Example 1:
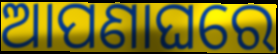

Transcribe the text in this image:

ଆପଣାଘରେ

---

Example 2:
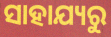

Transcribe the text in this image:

ସାହାଯ୍ୟରୁ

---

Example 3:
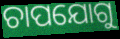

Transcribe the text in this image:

ଚାପଯୋଗୁ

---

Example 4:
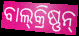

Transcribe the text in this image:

ବାଲ୍‍କ୍ରିଷ୍ଣନ୍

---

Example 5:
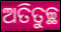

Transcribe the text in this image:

ଅତିତୁଚ୍ଛ